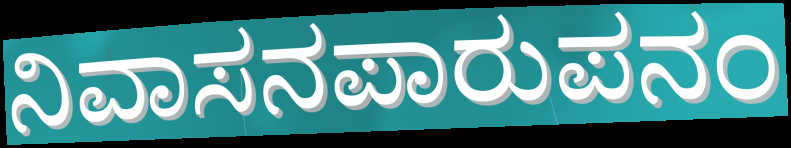
ನಿವಾಸನಪಾರುಪನಂ